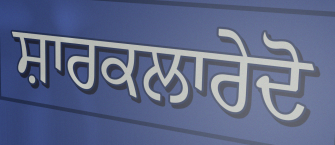
ਸ਼ਾਰਕਲਾਰੇਦੋ